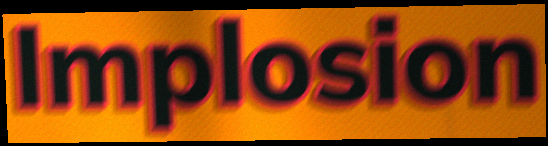
Implosion